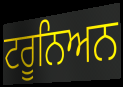
ਟਰੂਨਿਅਨ